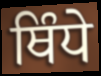
ਥਿੰਧੇ